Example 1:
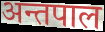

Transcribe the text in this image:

अन्तपाल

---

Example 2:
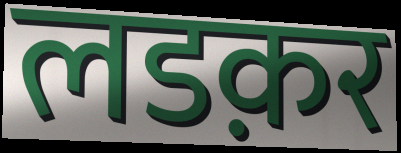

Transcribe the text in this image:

लडक़र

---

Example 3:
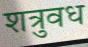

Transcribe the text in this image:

शत्रुवध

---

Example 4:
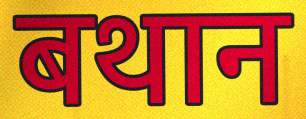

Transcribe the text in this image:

बथान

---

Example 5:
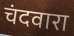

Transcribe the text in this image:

चंदवारा